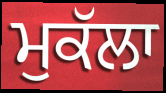
ਮੁਕੱਲਾ